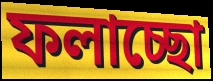
ফলাচ্ছো